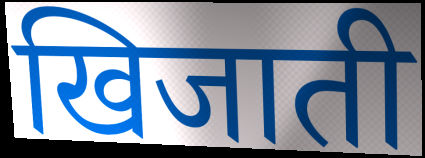
खिजाती